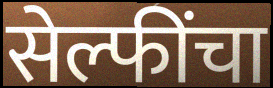
सेल्फींचा